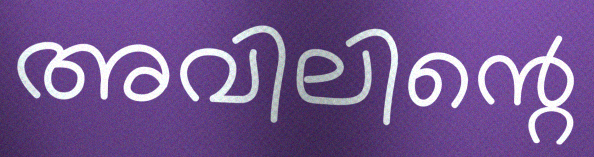
അവിലിന്റെ